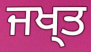
ਜਖ੍ਤ